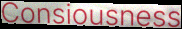
Consiousness